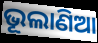
ଭୂଲାଣିଆ